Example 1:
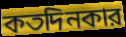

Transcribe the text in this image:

কতদিনকার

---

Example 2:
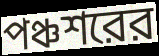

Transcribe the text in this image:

পঞ্চশরের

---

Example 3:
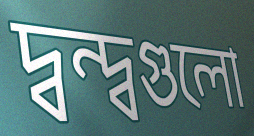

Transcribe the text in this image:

দ্বন্দ্বগুলো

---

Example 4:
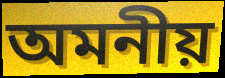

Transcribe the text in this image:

অমনীয়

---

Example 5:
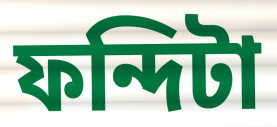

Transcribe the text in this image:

ফন্দিটা